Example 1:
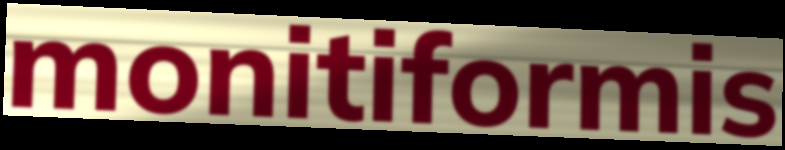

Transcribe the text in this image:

monitiformis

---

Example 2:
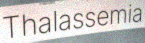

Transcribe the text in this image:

Thalassemia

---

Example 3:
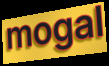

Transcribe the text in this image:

mogal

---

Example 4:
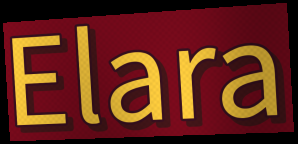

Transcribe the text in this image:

Elara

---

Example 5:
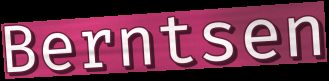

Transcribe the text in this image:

Berntsen